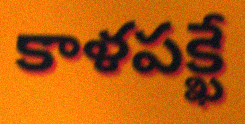
కాళపక్ఖే